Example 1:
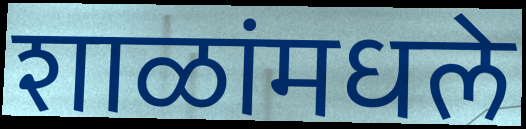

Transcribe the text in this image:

शाळांमधले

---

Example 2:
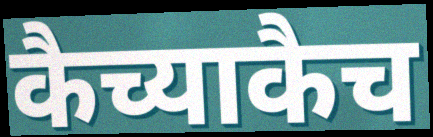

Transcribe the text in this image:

कैच्याकैच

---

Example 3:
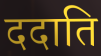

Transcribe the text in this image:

ददाति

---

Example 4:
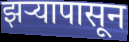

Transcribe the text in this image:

झऱ्यापासून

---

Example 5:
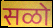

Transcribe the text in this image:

सळो